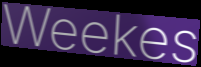
Weekes